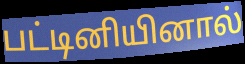
பட்டினியினால்